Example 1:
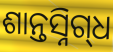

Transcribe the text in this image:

ଶାନ୍ତସ୍ନିଗ୍‌ଧ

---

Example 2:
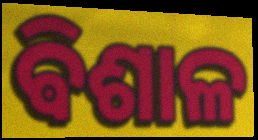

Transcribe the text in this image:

ଵିଶାଳ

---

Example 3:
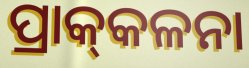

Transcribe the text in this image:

ପ୍ରାକ୍‌କଳନା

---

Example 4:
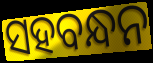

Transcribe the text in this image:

ସହବନ୍ଧନ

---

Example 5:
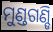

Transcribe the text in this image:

ମୁଣ୍ଡଗଣ୍ଡି